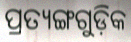
ପ୍ରତ୍ୟଙ୍ଗଗୁଡ଼ିକ